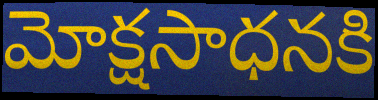
మోక్షసాధనకి